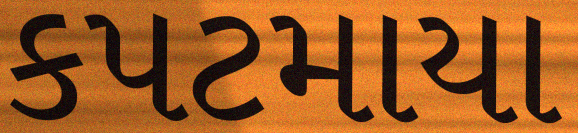
કપટમાયા